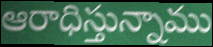
ఆరాధిస్తున్నాము